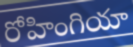
రోహింగియా